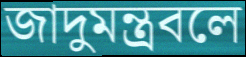
জাদুমন্ত্রবলে